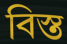
বিস্ত